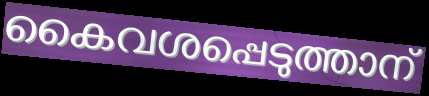
കൈവശപ്പെടുത്താന്